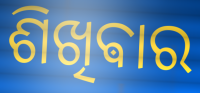
ଶିଖିଵାର